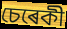
চেৰেকী